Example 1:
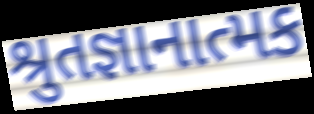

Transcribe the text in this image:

શ્રુતજ્ઞાનાત્મક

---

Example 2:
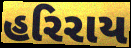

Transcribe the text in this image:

હરિરાય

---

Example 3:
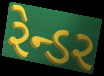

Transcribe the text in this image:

રેન્ડર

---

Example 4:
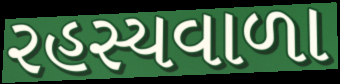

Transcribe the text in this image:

રહસ્યવાળા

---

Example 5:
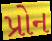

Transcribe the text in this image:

પ્રોન